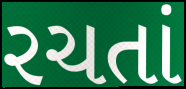
રચતાં